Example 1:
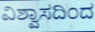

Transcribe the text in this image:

ವಿಶ್ವಾಸದಿಂದ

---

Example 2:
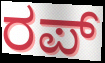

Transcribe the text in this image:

ರಪ್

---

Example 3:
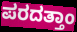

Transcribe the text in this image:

ಪರದತ್ತಾಂ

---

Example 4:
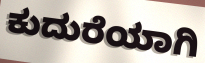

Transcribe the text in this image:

ಕುದುರೆಯಾಗಿ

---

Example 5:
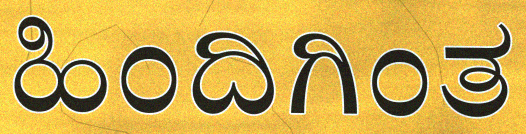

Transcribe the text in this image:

ಹಿಂದಿಗಿಂತ